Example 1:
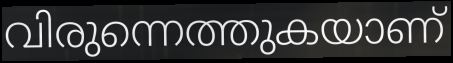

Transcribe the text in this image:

വിരുന്നെത്തുകയാണ്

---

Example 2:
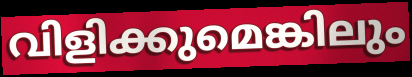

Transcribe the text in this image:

വിളിക്കുമെങ്കിലും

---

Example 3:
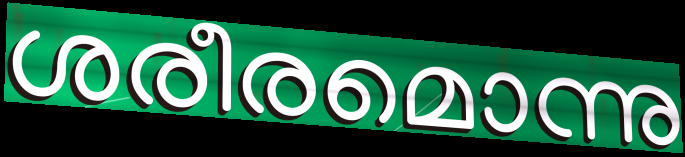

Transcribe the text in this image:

ശരീരമൊന്നു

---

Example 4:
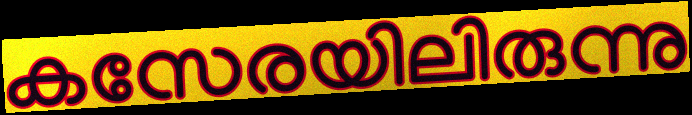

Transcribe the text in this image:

കസേരയിലിരുന്നു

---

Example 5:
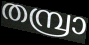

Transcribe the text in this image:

തമ്പ്രാ